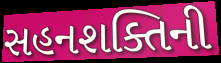
સહનશક્તિની